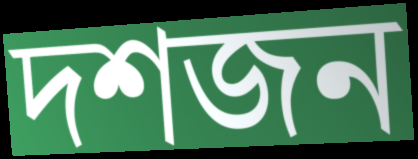
দশজন